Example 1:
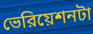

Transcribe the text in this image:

ভেরিয়েশনটা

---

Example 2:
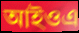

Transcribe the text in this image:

আইওএ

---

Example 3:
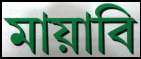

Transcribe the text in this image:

মায়াবি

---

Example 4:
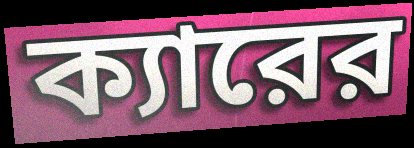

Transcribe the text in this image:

ক্যারের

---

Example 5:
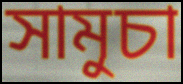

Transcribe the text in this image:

সামুচা